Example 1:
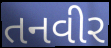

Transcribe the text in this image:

તનવીર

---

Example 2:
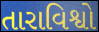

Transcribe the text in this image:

તારાવિશ્વો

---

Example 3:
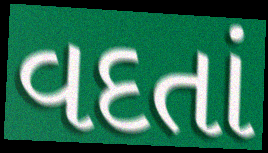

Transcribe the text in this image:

વદતાં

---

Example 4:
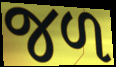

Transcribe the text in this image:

જળ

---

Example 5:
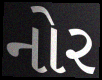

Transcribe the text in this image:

નોર